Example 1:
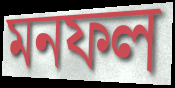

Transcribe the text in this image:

মনফল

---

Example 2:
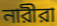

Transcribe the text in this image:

নারীরা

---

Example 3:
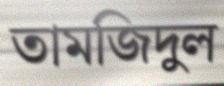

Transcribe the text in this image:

তামজিদুল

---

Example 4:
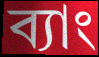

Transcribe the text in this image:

ব্যাং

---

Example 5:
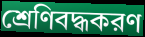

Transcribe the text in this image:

শ্রেণিবদ্ধকরণ